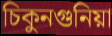
চিকুনগুনিয়া